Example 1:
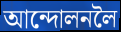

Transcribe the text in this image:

আন্দোলনলৈ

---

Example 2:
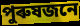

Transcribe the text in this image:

পুৰুষজনে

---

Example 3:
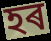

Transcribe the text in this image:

হৰ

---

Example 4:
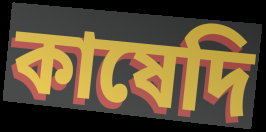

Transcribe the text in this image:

কাষেদি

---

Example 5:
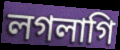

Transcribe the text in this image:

লগলাগি